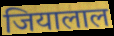
जियालाल